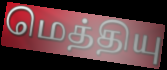
மெத்தியு